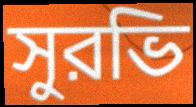
সুরভি